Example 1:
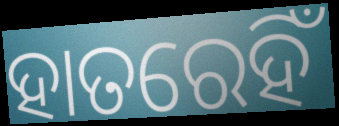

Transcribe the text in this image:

ହାତରେହିଁ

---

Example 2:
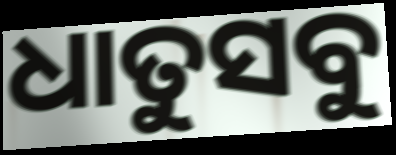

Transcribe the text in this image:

ଧାତୁସବୁ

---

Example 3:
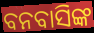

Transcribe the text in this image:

ବନବାସିଙ୍କ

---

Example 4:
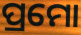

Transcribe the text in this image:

ପ୍ରମୋ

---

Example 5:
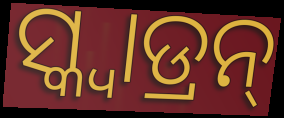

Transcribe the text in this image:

ସ୍କ୍ୱାଡ୍ରନ୍